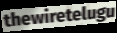
thewiretelugu